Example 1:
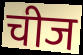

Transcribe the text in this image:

चीज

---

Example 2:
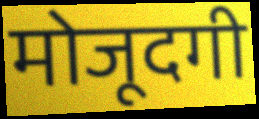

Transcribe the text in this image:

मोजूदगी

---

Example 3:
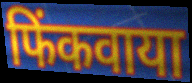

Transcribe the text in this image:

फिंकवाया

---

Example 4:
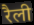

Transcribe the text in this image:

रैली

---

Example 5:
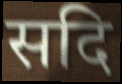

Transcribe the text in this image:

सदि